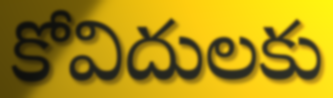
కోవిదులకు